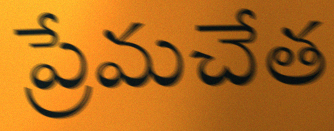
ప్రేమచేత